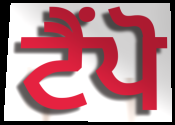
ਟੈਂਪੋ